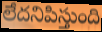
లేదనిపిస్తుంది